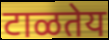
टाळतेय